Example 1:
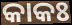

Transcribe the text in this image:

କାକଃ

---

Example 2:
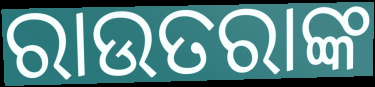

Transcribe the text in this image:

ରାଉତରାଙ୍କ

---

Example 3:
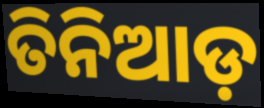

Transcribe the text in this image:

ତିନିଆଡ଼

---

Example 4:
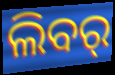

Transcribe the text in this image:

ଲିବର୍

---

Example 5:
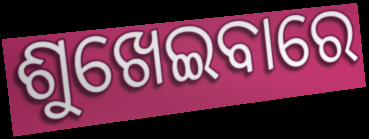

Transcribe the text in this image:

ଶୁଖେଇବାରେ